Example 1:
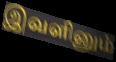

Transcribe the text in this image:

இவளினும்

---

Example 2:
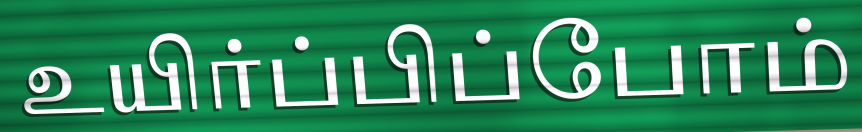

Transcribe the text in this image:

உயிர்ப்பிப்போம்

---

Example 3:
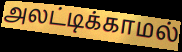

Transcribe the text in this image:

அலட்டிக்காமல்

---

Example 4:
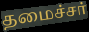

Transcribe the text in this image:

தமைச்சர்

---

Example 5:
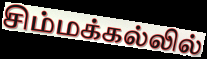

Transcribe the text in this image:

சிம்மக்கல்லில்